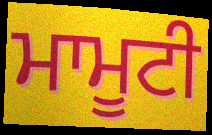
ਮਾਮੂਟੀ